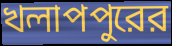
খলাপপুরের